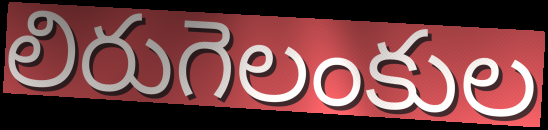
లిరుగెలంకుల